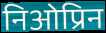
निओप्रिन